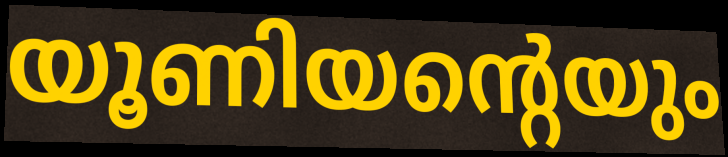
യൂണിയന്റെയും